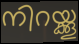
നിറയ്ക്കൂ